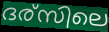
ദര്സിലെ